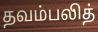
தவம்பலித்